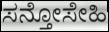
ಸನ್ತೋಸೇಹಿ